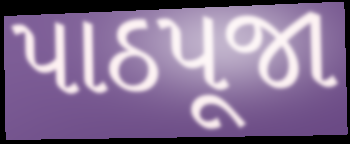
પાઠપૂજા